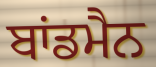
ਬਾਂਡਮੈਨ